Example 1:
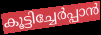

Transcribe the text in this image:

കൂട്ടിച്ചേർപ്പാൻ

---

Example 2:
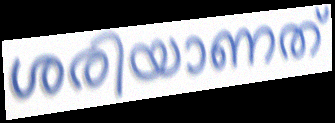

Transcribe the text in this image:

ശരിയാണത്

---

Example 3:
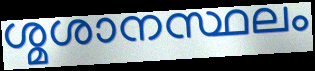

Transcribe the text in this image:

ശ്മശാനസ്ഥലം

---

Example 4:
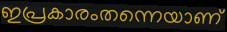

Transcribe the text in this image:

ഇപ്രകാരംതന്നെയാണ്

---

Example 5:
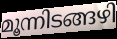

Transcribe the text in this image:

മൂന്നിടങ്ങഴി